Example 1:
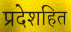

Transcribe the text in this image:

प्रदेशहित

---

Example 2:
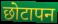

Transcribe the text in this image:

छोटापन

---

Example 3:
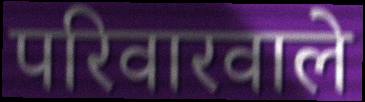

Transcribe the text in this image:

परिवारवाले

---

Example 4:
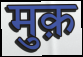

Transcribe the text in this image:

मुक़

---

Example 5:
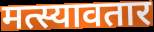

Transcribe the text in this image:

मत्स्यावतार